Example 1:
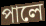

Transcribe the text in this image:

পালে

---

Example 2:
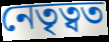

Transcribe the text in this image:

নেতৃত্বত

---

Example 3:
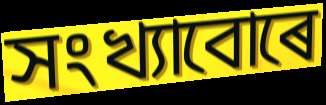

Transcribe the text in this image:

সংখ্যাবোৰে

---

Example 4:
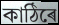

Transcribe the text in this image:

কাঠিৰে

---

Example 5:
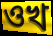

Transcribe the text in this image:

ওখ